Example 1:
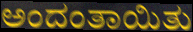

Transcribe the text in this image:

ಅಂದಂತಾಯಿತು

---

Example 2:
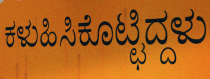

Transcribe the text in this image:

ಕಳುಹಿಸಿಕೊಟ್ಟಿದ್ದಳು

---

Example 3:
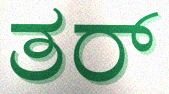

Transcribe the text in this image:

ತರ್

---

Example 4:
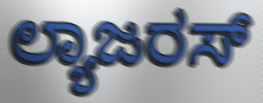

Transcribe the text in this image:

ಲ್ಯಾಜರಸ್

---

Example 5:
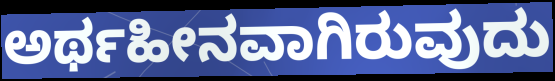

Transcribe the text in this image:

ಅರ್ಥಹೀನವಾಗಿರುವುದು